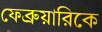
ফেব্রুয়ারিকে